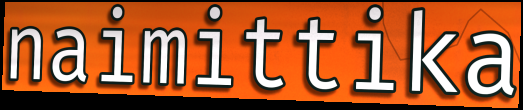
naimittika